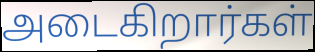
அடைகிறார்கள்